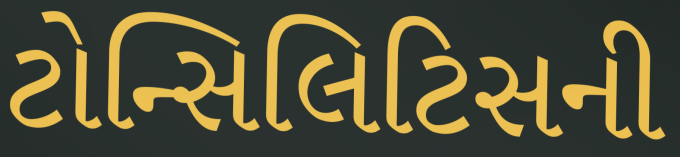
ટોન્સિલિટિસની